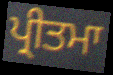
ਪ੍ਰੀਤਮਾ